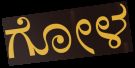
ಗೋಳ